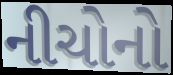
નીચોનો